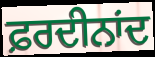
ਫ਼ਰਦੀਨਾਂਦ